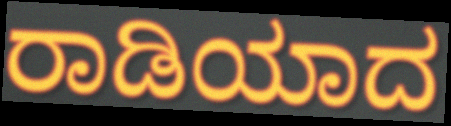
ರಾಡಿಯಾದ